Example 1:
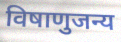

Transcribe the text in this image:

विषाणुजन्य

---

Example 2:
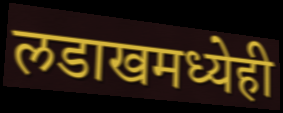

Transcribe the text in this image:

लडाखमध्येही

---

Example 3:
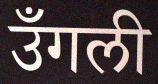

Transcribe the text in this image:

उँगली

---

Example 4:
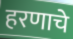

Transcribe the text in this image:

हरणाचे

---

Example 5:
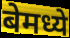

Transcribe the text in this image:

बेमध्ये